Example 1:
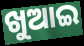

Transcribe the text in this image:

ଖୁଆଇ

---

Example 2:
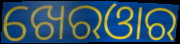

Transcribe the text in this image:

ଖେରଓାର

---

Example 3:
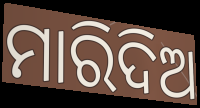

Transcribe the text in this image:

ମାରିଦିଅ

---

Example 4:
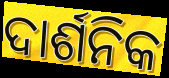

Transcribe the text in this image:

ଦାର୍ଶନିକ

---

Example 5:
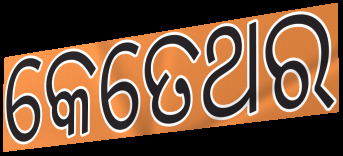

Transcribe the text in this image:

କେତେଥର